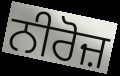
ਨੀਰੋਜ਼